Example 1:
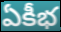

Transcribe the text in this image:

ఏకీభ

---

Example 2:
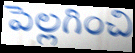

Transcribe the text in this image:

పెల్లగించి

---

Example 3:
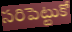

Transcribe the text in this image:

సరిపెట్టుకో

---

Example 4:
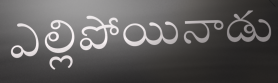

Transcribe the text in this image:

ఎల్లిపోయినాడు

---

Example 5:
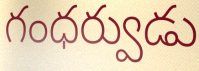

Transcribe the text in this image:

గంధర్వుడు